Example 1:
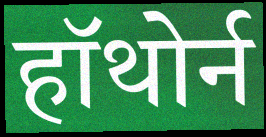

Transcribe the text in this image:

हॉथोर्न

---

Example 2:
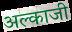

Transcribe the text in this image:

अल्काजी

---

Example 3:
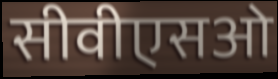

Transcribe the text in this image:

सीवीएसओ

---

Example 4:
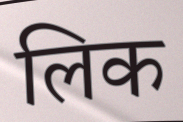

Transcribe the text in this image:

लिक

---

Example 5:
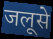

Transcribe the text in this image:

जलूसे